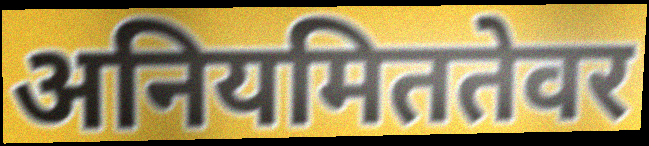
अनियमिततेवर